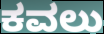
ಕವಲು